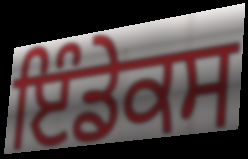
ਇੰਡੇਕਸ